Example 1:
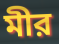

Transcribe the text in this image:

মীর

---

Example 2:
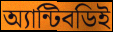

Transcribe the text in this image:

অ্যান্টিবডিই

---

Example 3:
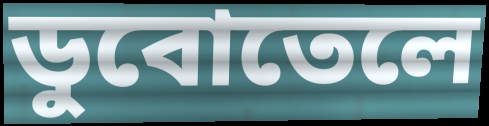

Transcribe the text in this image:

ডুবোতেলে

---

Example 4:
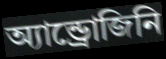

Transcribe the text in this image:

অ্যান্ড্রোজিনি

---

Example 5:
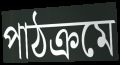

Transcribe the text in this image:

পাঠক্রমে